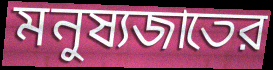
মনুষ্যজাতের